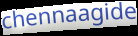
chennaagide